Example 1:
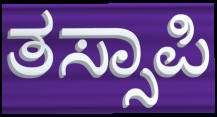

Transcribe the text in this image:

ತಸ್ಸಾಪಿ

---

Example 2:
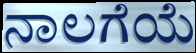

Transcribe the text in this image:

ನಾಲಗೆಯೆ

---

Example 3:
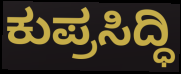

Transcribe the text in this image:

ಕುಪ್ರಸಿದ್ಧಿ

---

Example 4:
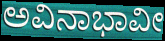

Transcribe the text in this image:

ಅವಿನಾಭಾವೀ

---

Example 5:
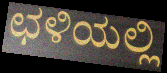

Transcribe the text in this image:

ಛಳಿಯಲ್ಲಿ